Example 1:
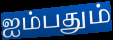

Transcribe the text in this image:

ஐம்பதும்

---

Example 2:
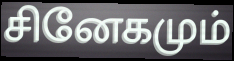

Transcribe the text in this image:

சினேகமும்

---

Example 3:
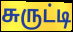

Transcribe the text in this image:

சுருட்டி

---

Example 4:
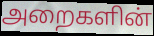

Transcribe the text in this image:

அறைகளின்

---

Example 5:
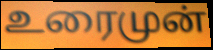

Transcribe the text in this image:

உரைமுன்